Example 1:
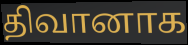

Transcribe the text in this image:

திவானாக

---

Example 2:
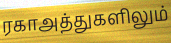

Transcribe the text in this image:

ரகாஅத்துகளிலும்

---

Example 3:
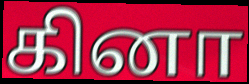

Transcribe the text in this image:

கினா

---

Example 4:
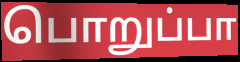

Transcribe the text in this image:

பொறுப்பா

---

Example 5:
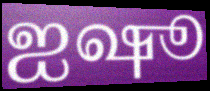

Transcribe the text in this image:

ஐஷூ